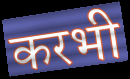
करभी